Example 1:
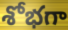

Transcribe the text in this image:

శోభగా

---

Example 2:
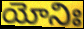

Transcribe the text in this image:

యోనిః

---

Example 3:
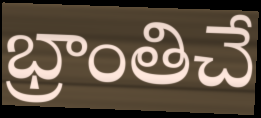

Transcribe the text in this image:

భ్రాంతిచే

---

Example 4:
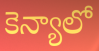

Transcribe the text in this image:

కెన్యాలో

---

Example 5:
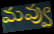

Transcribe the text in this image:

మవ్వు